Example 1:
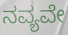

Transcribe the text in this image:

ನವ್ಯವೇ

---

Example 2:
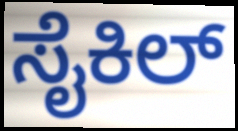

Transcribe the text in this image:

ಸೈಕಿಲ್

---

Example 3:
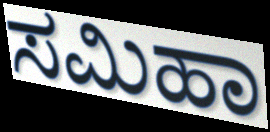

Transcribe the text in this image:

ಸಮಿಹಾ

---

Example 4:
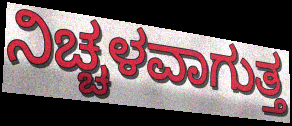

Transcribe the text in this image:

ನಿಚ್ಚಳವಾಗುತ್ತ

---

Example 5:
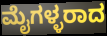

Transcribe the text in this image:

ಮೈಗಳ್ಳರಾದ